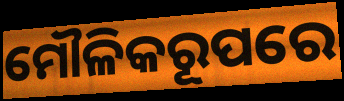
ମୌଳିକରୂପରେ